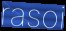
rasoi